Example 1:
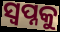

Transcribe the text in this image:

ସ୍ବପ୍ନକୁ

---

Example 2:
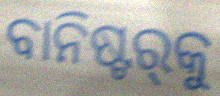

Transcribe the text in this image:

ବାନିଷ୍ଟର୍‍କୁ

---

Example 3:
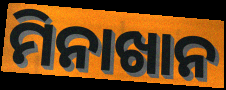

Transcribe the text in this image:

ମିନାଖାନ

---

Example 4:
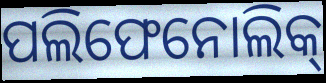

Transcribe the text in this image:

ପଲିଫେନୋଲିକ୍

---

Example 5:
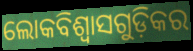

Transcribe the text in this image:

ଲୋକବିଶ୍ଵାସଗୁଡ଼ିକର